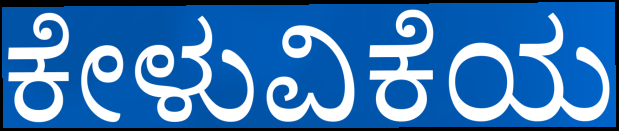
ಕೇಳುವಿಕೆಯ